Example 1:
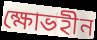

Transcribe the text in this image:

ক্ষোভহীন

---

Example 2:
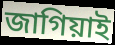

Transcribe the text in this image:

জাগিয়াই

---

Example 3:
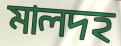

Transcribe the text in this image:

মালদহ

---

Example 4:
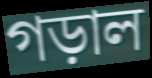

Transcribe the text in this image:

গড়াল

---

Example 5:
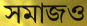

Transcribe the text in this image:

সমাজও